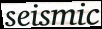
seismic